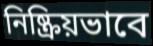
নিষ্ক্রিয়ভাবে